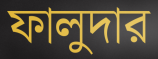
ফালুদার